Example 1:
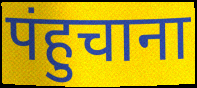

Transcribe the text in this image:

पंहुचाना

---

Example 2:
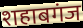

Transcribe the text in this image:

शहाबगंज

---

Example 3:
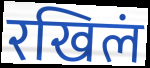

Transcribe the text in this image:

रखिलं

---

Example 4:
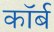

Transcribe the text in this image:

कॉर्ब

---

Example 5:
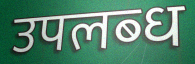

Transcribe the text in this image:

उपलब्‍ध